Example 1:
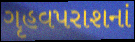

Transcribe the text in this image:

ગૃહવપરાશનાં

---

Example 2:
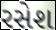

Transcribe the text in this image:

રસેશ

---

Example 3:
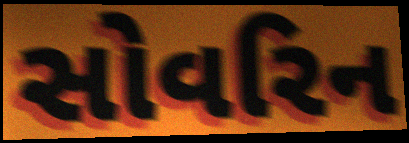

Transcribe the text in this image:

સોવરિન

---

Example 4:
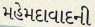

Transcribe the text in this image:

મહેમદાવાદની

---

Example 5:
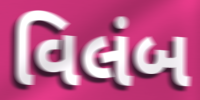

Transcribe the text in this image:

વિલંબ